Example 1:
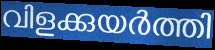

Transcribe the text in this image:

വിളക്കുയർത്തി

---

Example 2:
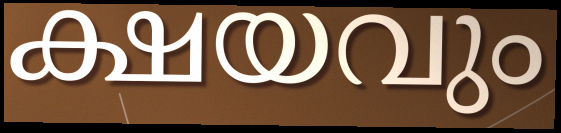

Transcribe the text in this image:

ക്ഷയവും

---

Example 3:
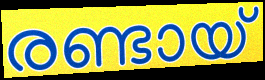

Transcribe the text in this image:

രണ്ടായ്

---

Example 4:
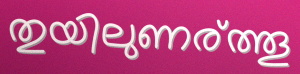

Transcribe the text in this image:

തുയിലുണര്ത്തൂ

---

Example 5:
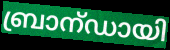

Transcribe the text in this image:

ബ്രാന്ഡായി